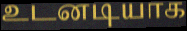
உடனடியாக